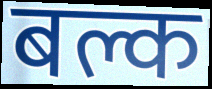
बल्क